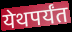
येथपर्यंत